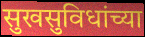
सुखसुविधांच्या